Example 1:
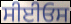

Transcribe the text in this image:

ਸੀਈਓਸ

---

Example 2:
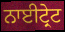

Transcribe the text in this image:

ਨਾਈਟ੍ਰੇਟ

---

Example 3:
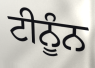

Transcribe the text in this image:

ਟੀਨੂੰਨ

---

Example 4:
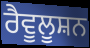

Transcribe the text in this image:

ਰੈਵੂਲੂਸ਼ਨ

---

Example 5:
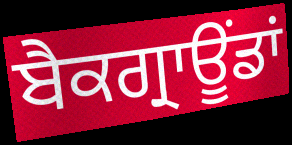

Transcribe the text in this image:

ਬੈਕਗ੍ਰਾਊਂਡਾਂ